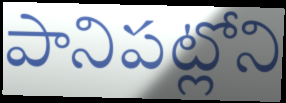
పానిపట్లోని